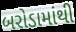
બરોડામાંથી